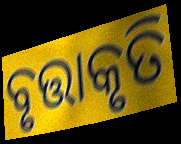
ବୃତ୍ତାକୃତି